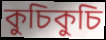
কুচিকুচি